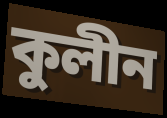
কুলীন